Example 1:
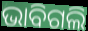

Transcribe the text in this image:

ଭାବିଗଲି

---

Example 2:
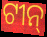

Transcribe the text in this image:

ଟୀନ୍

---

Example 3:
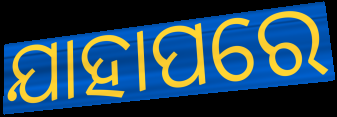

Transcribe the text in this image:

ଯାହାପରେ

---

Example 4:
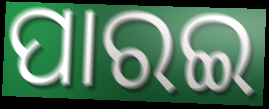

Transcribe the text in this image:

ପାରଇ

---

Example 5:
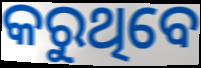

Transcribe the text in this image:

କରୁଥିବେ